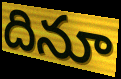
దినూ